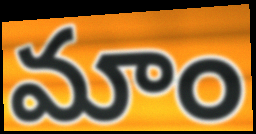
మాం